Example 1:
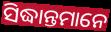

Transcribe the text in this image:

ସିଦ୍ଧାନ୍ତମାନେ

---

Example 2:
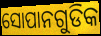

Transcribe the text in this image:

ସୋପାନଗୁଡିକ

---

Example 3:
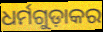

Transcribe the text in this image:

ଧର୍ମଗୁଡ଼ାକର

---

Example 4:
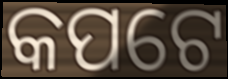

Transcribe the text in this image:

କପଟେ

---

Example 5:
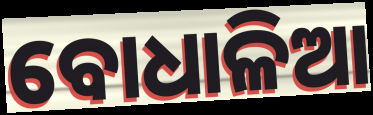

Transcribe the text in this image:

ବୋଧାଳିଆ